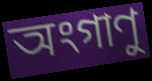
অংগাণু